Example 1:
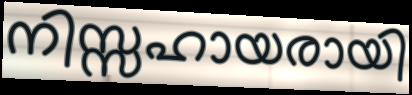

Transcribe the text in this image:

നിസ്സഹായരായി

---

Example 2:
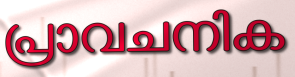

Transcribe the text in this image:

പ്രാവചനിക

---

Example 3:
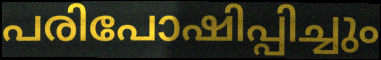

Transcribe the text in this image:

പരിപോഷിപ്പിച്ചും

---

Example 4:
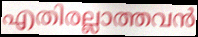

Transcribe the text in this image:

എതിരല്ലാത്തവൻ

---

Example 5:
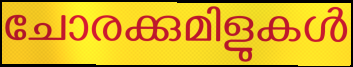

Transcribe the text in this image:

ചോരക്കുമിളുകൾ